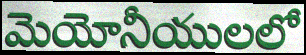
మెయోనీయులలో